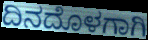
ದಿನದೊಳಗಾಗಿ